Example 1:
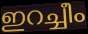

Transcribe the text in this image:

ഇറച്ചീം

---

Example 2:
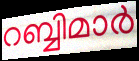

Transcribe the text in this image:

റബ്ബിമാർ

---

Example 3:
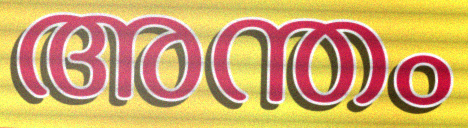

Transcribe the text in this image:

അന്തം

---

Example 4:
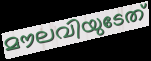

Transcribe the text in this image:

മൗലവിയുടേത്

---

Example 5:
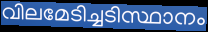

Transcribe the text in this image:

വിലമേടിച്ചടിസ്ഥാനം